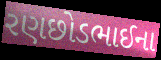
રણછોડભાઈના